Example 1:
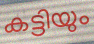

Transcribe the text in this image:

കട്ടിയും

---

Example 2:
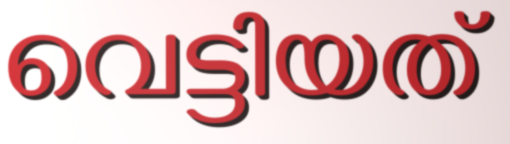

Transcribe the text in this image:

വെട്ടിയത്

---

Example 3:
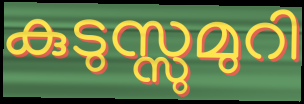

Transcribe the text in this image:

കുടുസ്സുമുറി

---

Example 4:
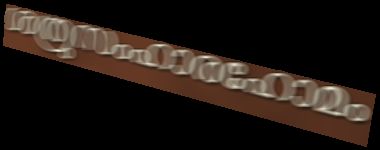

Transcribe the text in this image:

ശത്രുസംഹാരഹോമം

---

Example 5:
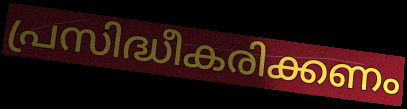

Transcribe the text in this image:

പ്രസിദ്ധീകരിക്കണം